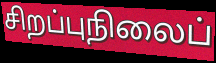
சிறப்புநிலைப்